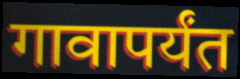
गावापर्यंत